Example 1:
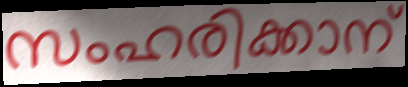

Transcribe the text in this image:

സംഹരിക്കാന്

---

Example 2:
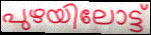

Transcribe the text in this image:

പുഴയിലോട്ട്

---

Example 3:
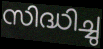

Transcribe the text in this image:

സിദ്ധിച്ചു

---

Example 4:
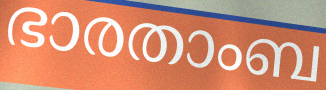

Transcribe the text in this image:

ഭാരതാംബ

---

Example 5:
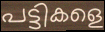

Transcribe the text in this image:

പട്ടികളെ